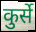
कुर्से